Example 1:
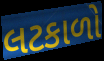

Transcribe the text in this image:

લટકાળો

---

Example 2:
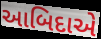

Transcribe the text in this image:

આબિદાએ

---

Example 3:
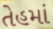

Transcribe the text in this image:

તેહમાં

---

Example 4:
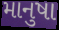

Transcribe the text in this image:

માનુષા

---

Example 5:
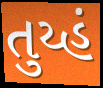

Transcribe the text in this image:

તુય્હં